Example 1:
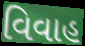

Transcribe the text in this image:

વિવાહ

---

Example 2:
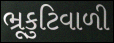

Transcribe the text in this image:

ભ્રૂકુટિવાળી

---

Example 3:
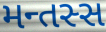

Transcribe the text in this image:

મન્તસ્સ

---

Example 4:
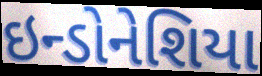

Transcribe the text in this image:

ઇન્ડોનેશિયા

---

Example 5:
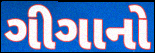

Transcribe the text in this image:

ગીગાનો